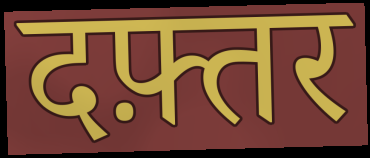
दफ़्तर